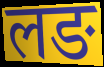
लङ